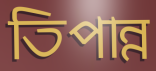
তিপান্ন